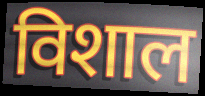
विशाल